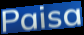
Paisa